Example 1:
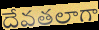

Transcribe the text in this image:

దేవతలాగా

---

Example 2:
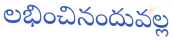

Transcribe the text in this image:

లభించినందువల్ల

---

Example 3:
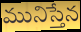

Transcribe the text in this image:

మునిస్తేన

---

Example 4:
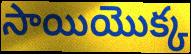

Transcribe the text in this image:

సాయియొక్క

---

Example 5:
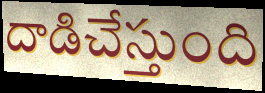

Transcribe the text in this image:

దాడిచేస్తుంది